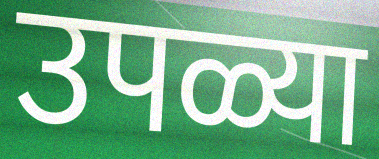
उपळ्या